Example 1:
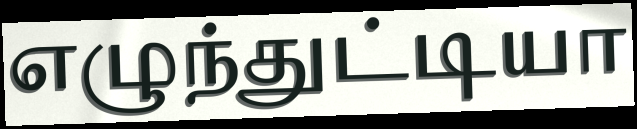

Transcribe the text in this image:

எழுந்துட்டியா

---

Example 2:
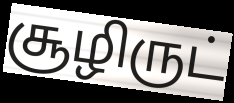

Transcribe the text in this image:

சூழிருட்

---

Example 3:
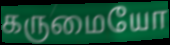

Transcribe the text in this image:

கருமையோ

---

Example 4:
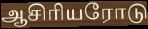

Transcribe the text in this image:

ஆசிரியரோடு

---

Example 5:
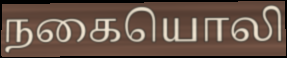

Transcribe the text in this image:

நகையொலி